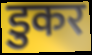
डुकर